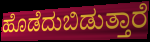
ಹೊಡೆದುಬಿಡುತ್ತಾರೆ